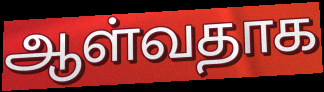
ஆள்வதாக